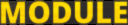
MODULE